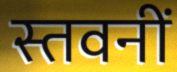
स्तवनीं